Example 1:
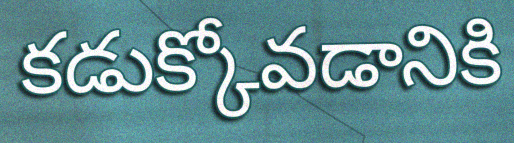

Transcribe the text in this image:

కడుక్కోవడానికి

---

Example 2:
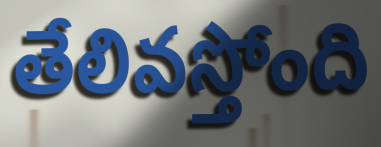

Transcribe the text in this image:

తేలివస్తోంది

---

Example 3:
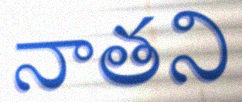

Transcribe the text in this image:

నాతని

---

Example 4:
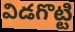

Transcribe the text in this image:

విడగొట్టి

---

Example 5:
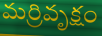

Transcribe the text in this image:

మర్రివృక్షం